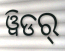
ୱିଡର୍